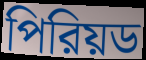
পিরিয়ড